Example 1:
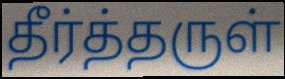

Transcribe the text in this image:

தீர்த்தருள்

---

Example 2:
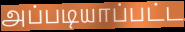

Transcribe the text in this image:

அப்படியாப்பட்ட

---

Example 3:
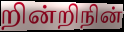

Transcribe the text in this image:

றின்றிநின்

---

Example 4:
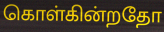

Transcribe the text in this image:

கொள்கின்றதோ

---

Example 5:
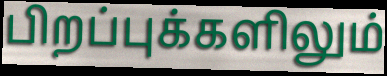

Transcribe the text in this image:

பிறப்புக்களிலும்